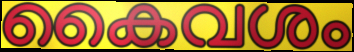
കൈവശം